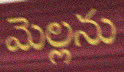
మెల్లను